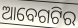
ଆବେଗଟିର